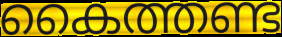
കൈത്തണ്ട